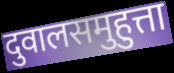
दुवालसमुहुत्ता